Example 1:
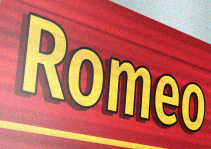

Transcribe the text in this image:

Romeo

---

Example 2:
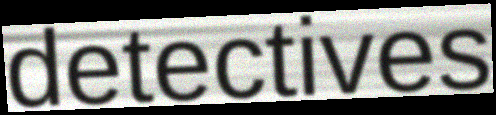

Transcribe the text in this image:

detectives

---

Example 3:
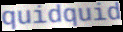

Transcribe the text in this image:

quidquid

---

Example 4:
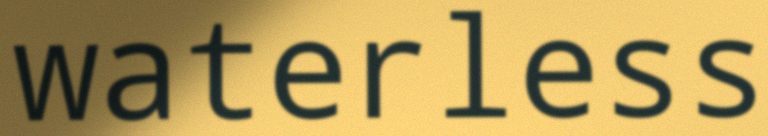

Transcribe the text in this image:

waterless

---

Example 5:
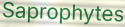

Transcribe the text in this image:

Saprophytes